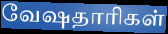
வேஷதாரிகள்